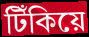
টিঁকিয়ে